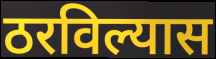
ठरविल्यास